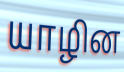
யாழின